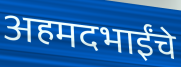
अहमदभाईंचे